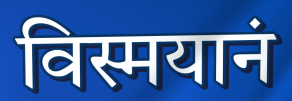
विस्मयानं